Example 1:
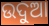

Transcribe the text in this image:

ଉଦୁଆ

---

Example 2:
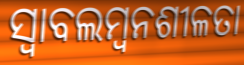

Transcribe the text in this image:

ସ୍ୱାବଲମ୍ବନଶୀଳତା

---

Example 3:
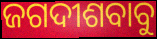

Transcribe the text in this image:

ଜଗଦୀଶବାବୁ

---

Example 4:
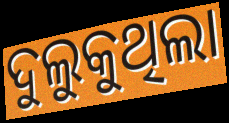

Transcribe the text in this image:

ଦୁଲୁକୁଥିଲା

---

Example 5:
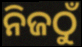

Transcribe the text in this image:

ନିଜଠୁଁ